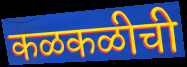
कळकळीची